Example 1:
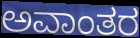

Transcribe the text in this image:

ಅವಾಂತರ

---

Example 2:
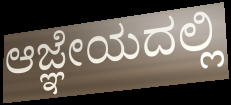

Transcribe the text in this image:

ಆಜ್ಞೇಯದಲ್ಲಿ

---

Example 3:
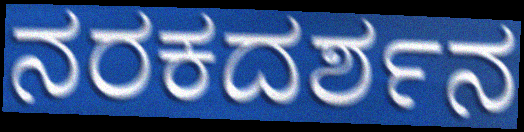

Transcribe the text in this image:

ನರಕದರ್ಶನ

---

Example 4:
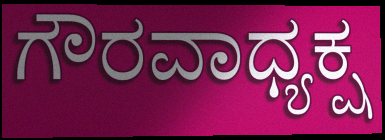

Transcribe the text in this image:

ಗೌರವಾಧ್ಯಕ್ಷ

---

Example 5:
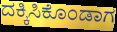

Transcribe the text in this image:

ದಕ್ಕಿಸಿಕೊಂಡಾಗ